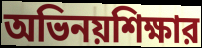
অভিনয়শিক্ষার